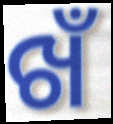
ଖଁ